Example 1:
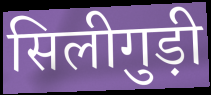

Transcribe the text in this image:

सिलीगुड़ी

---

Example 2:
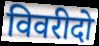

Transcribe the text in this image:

विवरीदो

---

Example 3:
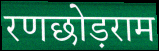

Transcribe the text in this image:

रणछोड़राम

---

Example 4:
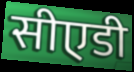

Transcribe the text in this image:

सीएडी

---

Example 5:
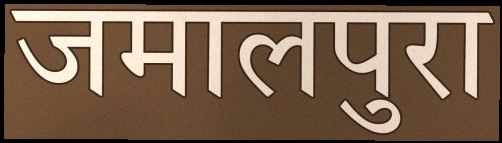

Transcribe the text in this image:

जमालपुरा